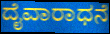
ದೈವಾರಾಧನೆ